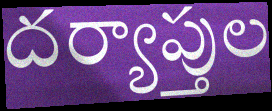
దర్యాప్తుల